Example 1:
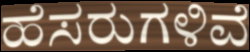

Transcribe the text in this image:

ಹೆಸರುಗಳಿವೆ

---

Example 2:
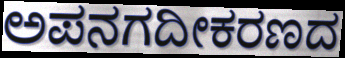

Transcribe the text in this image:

ಅಪನಗದೀಕರಣದ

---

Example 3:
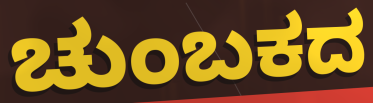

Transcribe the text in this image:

ಚುಂಬಕದ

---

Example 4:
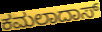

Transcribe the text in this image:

ಕಮಲಾದಾಸ್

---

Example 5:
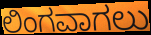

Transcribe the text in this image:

ಲಿಂಗವಾಗಲು